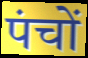
पंचों